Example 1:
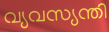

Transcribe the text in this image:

വ്യവസ്യന്തി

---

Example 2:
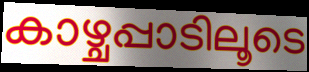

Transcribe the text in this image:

കാഴ്ചപ്പാടിലൂടെ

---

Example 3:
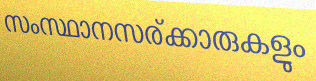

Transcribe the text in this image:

സംസ്ഥാനസര്ക്കാരുകളും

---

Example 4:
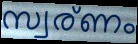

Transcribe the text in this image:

സ്വര്ണം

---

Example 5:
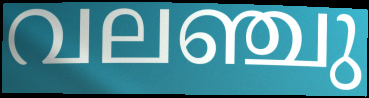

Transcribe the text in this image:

വലഞ്ചു